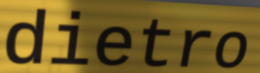
dietro